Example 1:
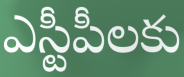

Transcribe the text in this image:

ఎస్టీపీలకు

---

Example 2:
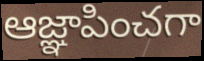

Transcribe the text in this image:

ఆజ్ఞాపించగా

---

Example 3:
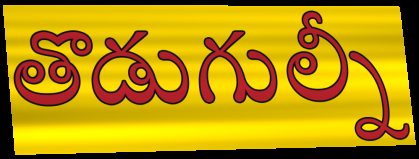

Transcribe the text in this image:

తొడుగుల్నీ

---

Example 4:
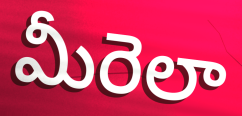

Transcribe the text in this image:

మీరెలా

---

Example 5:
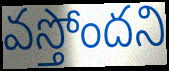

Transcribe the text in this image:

వస్తోందని